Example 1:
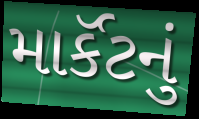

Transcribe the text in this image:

માર્કૅટનું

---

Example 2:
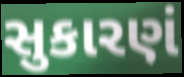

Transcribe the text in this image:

સુકારણં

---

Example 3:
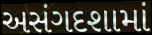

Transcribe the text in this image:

અસંગદશામાં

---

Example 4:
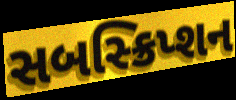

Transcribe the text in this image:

સબસ્ક્રિપ્શન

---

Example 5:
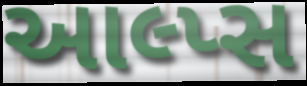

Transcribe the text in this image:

આલ્પ્સ